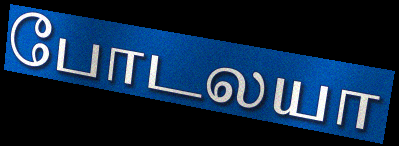
போடலயா